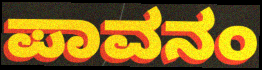
ಪಾವನಂ